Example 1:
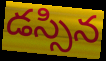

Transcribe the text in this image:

డస్సిన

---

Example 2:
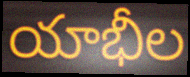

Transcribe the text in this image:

యాభీల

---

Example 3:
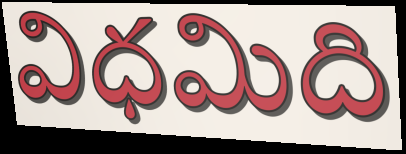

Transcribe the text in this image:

విధమిది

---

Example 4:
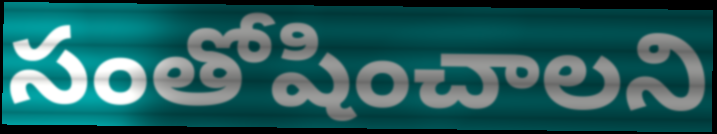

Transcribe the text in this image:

సంతోషించాలని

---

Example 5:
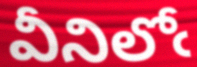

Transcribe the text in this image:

వీనిలోఁ